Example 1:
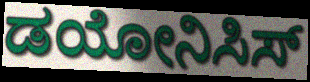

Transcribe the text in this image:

ಡಯೋನಿಸಿಸ್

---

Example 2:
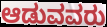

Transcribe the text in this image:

ಆಡುವವರು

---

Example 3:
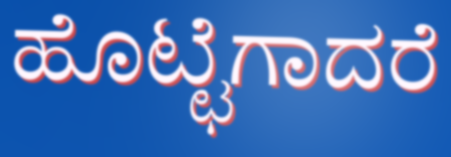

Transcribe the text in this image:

ಹೊಟ್ಟೆಗಾದರೆ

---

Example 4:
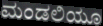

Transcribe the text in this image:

ಮಂಡಲಿಯೂ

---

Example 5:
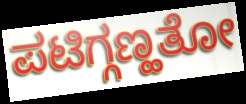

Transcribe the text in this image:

ಪಟಿಗ್ಗಣ್ಹತೋ